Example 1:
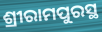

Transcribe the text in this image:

ଶ୍ରୀରାମପୁରସ୍ଥ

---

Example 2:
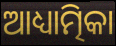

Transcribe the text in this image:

ଆଧ୍ୟାତ୍ମିକା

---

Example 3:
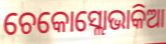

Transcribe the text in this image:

ଚେକୋସ୍ଲୋଭାକିଆ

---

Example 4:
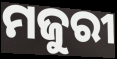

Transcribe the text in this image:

ମଜୁରୀ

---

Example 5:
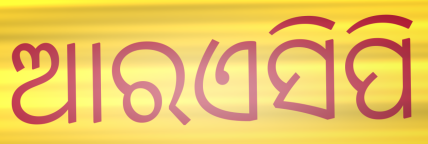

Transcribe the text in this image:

ଆରଏସିପି